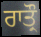
ਰਾਤ੍ਰੌ